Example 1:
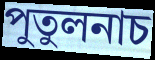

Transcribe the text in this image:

পুতুলনাচ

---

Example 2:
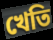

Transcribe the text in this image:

খেতি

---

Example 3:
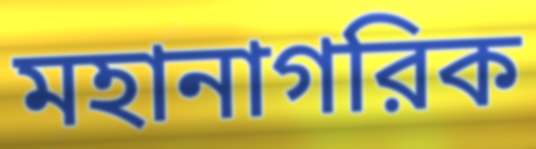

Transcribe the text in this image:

মহানাগরিক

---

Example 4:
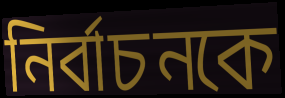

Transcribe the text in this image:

নির্বাচনকে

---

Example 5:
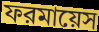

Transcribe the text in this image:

ফরমায়েস